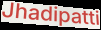
Jhadipatti